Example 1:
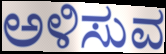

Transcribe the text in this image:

ಅಳಿಸುವ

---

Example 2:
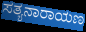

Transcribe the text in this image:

ಸತ್ಯನಾರಾಯಣ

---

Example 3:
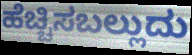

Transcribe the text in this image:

ಹೆಚ್ಚಿಸಬಲ್ಲುದು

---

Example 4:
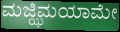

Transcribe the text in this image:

ಮಜ್ಝಿಮಯಾಮೇ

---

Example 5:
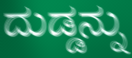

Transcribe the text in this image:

ದುಡ್ಡನ್ನು